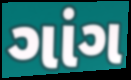
ગાંગ